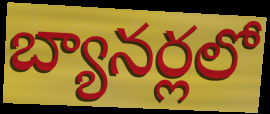
బ్యానర్లలో